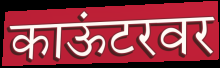
काऊंटरवर